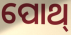
ପୋଥ୍